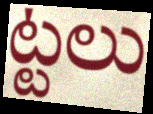
ట్టలు